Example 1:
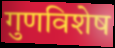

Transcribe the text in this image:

गुणविशेष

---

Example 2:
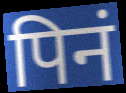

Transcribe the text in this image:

पिनं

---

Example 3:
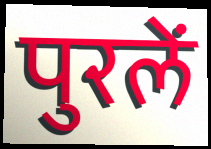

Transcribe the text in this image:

पुरलें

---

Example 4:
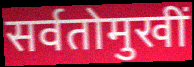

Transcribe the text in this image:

सर्वतोमुखीं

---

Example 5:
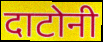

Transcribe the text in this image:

दाटोनी